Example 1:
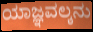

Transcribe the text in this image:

ಯಾಜ್ಞವಲ್ಕನು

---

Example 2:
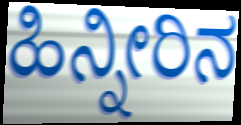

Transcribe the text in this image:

ಹಿನ್ನೀರಿನ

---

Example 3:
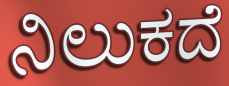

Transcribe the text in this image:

ನಿಲುಕದೆ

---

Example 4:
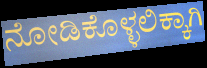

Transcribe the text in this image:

ನೋಡಿಕೊಳ್ಳಲಿಕ್ಕಾಗಿ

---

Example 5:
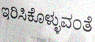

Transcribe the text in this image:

ಇರಿಸಿಕೊಳ್ಳುವಂತೆ